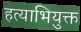
हत्याभियुक्त